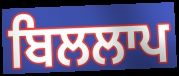
ਬਿਲਲਾਪ